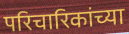
परिचारिकांच्या